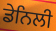
ਡੇਨਿਲੀ